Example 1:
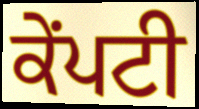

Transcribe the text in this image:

ਕੇਂਪਟੀ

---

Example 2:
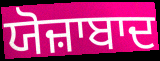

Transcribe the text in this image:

ਯੋਜ਼ਾਬਾਦ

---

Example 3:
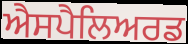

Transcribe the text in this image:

ਐਸਪੈਲਿਅਰਡ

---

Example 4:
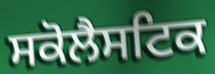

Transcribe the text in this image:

ਸਕੋਲੈਸਟਿਕ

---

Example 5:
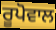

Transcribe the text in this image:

ਰੂਪੋਵਾਲ